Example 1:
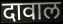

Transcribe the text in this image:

दावाल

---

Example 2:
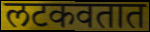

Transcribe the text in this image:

लटकवतात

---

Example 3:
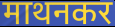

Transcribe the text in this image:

माथनकर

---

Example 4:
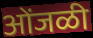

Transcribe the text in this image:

ओंजळी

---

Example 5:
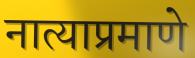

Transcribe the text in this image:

नात्याप्रमाणे